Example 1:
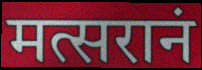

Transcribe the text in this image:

मत्सरानं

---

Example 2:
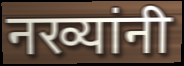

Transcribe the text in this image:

नख्यांनी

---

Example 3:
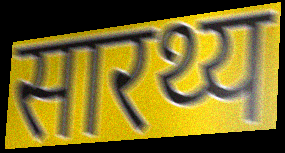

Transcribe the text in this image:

सारथ्य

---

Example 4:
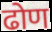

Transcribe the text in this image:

ढोण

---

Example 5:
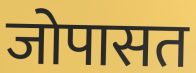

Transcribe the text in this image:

जोपासत